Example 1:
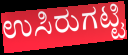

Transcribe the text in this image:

ಉಸಿರುಗಟ್ಟಿ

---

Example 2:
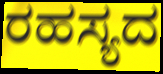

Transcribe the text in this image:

ರಹಸ್ಯದ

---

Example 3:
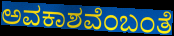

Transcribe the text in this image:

ಅವಕಾಶವೆಂಬಂತೆ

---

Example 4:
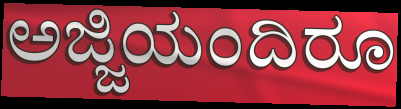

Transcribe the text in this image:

ಅಜ್ಜಿಯಂದಿರೂ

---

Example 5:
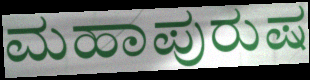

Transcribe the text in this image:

ಮಹಾಪುರುಷ